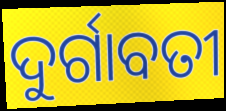
ଦୁର୍ଗାବତୀ